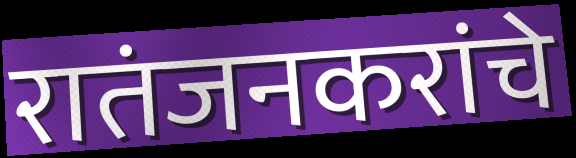
रातंजनकरांचे